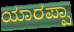
ಯಾರಪ್ಪಾ